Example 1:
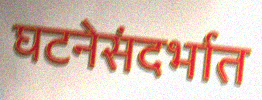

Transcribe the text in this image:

घटनेसंदर्भात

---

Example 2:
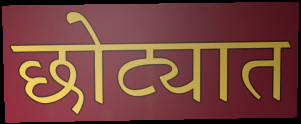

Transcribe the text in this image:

छोट्यात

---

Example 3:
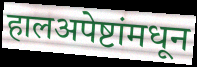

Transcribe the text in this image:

हालअपेष्टांमधून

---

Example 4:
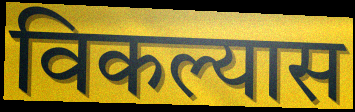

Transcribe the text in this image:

विकल्यास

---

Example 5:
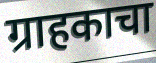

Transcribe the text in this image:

ग्राहकाचा